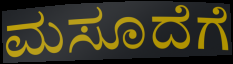
ಮಸೂದೆಗೆ